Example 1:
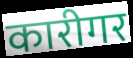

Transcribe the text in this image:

कारीगर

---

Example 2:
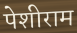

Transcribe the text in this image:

पेशीराम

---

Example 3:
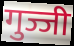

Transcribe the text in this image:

गुज्जी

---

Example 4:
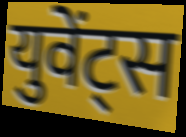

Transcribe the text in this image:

युवेंट्स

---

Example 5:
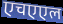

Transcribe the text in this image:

एचएएल